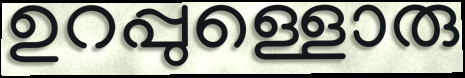
ഉറപ്പുള്ളൊരു